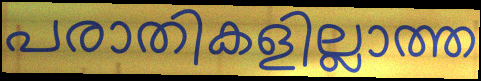
പരാതികളില്ലാത്ത